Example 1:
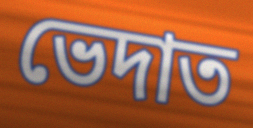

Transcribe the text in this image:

ভেদাত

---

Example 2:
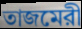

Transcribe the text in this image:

তাজমেরী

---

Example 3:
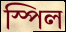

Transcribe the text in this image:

স্পিল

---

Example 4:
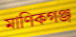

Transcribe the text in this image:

মাণিকগঞ্জ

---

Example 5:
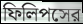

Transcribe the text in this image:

ফিলিপসের